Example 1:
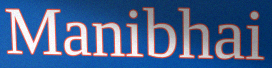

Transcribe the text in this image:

Manibhai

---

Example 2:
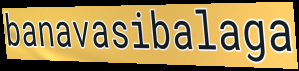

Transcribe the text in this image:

banavasibalaga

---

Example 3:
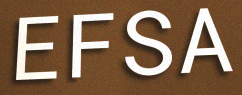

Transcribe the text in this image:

EFSA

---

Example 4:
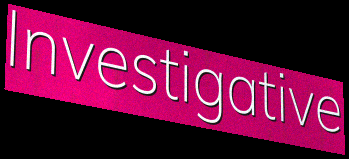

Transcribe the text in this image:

Investigative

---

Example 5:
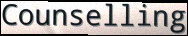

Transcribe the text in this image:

Counselling